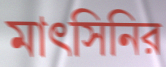
মাৎসিনির